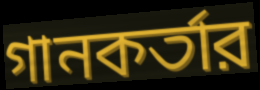
গানকর্তার